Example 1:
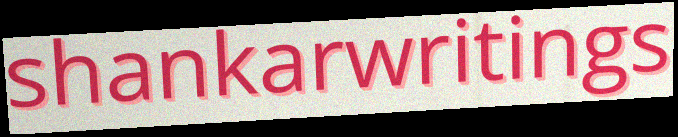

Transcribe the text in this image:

shankarwritings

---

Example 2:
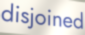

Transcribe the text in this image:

disjoined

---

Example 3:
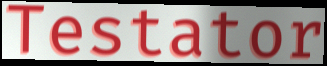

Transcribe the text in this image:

Testator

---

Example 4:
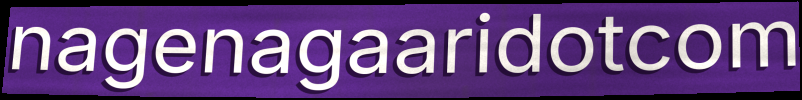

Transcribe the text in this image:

nagenagaaridotcom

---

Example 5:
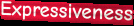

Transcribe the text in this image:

Expressiveness